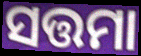
ସତ୍ତମା